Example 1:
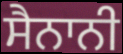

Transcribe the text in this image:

ਸੈਨਾਨੀ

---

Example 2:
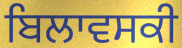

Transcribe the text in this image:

ਬਿਲਾਵਸਕੀ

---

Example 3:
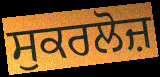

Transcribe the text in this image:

ਸੁਕਰਲੋਜ਼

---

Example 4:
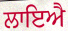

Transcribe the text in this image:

ਲਾਇਐ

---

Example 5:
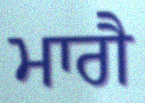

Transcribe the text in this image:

ਮਾਗੈ